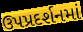
ઉપપ્રદર્શનમાં